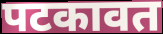
पटकावत